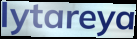
Iytareya